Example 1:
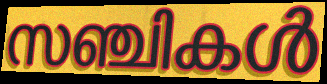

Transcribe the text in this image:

സഞ്ചികൾ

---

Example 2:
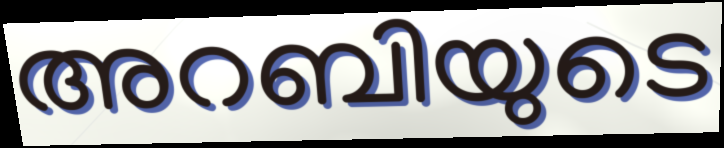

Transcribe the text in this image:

അറബിയുടെ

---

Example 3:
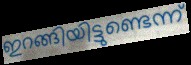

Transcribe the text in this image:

ഇറങ്ങിയിട്ടുണ്ടെന്ന്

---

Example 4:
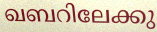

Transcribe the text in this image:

ഖബറിലേക്കു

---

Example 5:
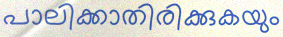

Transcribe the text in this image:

പാലിക്കാതിരിക്കുകയും